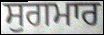
ਸੁਗਮਾਰ